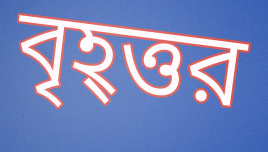
বৃহ্ত্তর